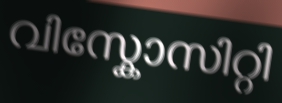
വിസ്കോസിറ്റി